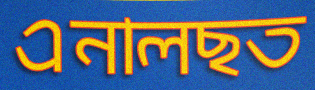
এনালছত